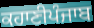
ਕਹਾਣੀਪੰਜਾਬ